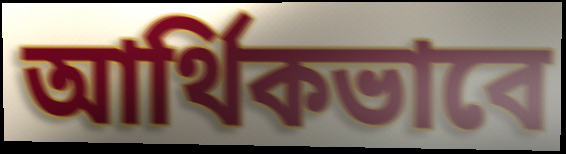
আৰ্থিকভাবে